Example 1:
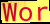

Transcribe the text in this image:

Wor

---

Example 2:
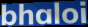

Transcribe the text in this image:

bhaloi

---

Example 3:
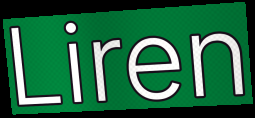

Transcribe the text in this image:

Liren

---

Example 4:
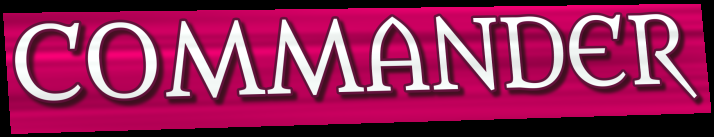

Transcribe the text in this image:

COMMANDER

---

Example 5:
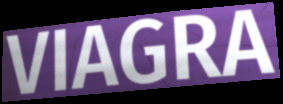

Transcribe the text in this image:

VIAGRA